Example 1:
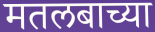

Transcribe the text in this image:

मतलबाच्या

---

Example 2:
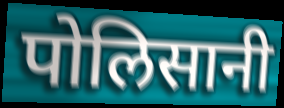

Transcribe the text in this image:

पोलिसानी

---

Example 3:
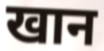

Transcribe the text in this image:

खान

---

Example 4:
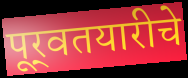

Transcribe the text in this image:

पूर्वतयारीचे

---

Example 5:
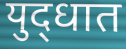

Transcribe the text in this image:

युद्धात